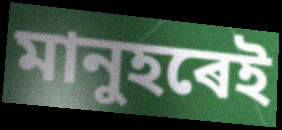
মানুহৰেই